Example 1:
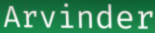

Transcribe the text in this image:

Arvinder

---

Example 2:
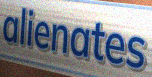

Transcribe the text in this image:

alienates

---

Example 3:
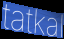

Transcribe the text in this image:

tatkal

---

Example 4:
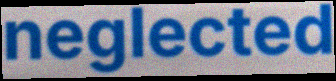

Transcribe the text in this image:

neglected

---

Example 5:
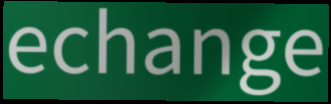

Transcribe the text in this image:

echange